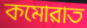
কমোৱাত